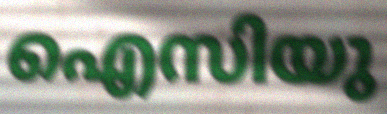
ഐസിയു